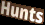
Hunts